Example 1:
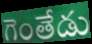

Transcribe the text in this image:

గెంతేడు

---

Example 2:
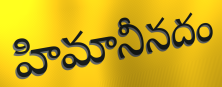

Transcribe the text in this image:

హిమానీనదం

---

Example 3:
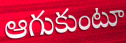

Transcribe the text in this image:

ఆగుకుంటూ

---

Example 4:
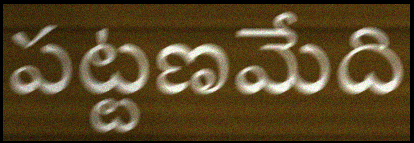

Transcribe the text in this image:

పట్టణమేది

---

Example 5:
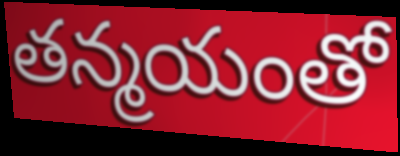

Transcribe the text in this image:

తన్మయంతో